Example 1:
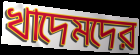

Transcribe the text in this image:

খাদেমদের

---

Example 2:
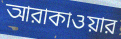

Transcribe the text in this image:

আরাকাওয়ার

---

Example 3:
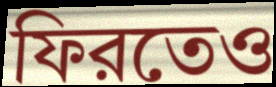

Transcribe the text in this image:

ফিরতেও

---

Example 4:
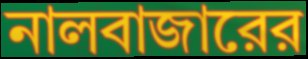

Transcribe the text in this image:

নালবাজারের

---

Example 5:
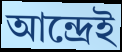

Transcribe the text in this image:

আন্দ্রেই